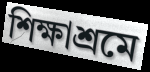
শিক্ষাশ্রমে